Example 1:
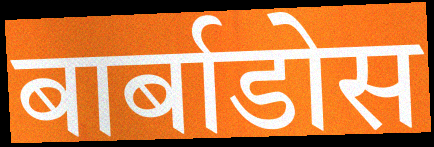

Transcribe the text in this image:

बार्बाडोस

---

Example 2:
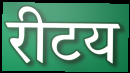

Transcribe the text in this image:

रीटय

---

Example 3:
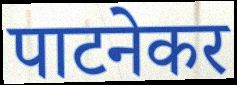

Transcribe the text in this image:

पाटनेकर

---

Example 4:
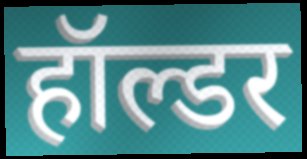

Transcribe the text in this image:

हॉल्डर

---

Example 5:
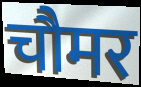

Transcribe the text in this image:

चौमर